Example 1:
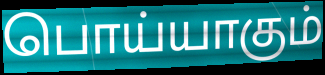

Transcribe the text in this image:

பொய்யாகும்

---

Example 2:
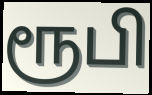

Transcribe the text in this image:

ரூபி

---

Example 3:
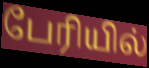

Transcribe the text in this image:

பேரியில்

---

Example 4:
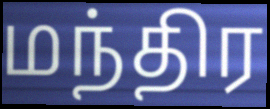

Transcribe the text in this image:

மந்திர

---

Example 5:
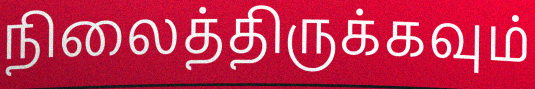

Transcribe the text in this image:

நிலைத்திருக்கவும்